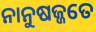
ନାନୁଷଜ୍ଜତେ